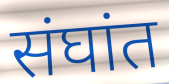
संघांत